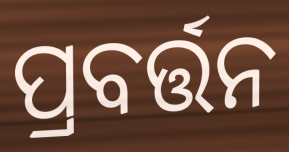
ପ୍ରବର୍ତ୍ତନ